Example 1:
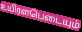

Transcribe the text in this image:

உயிரளபெடையும்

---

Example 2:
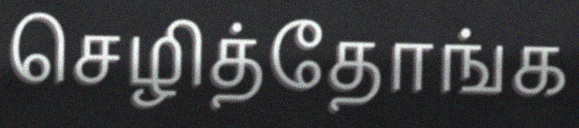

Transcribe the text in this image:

செழித்தோங்க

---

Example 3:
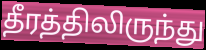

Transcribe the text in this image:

தீரத்திலிருந்து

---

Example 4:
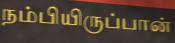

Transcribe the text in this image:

நம்பியிருப்பான்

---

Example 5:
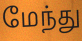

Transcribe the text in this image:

மேந்து